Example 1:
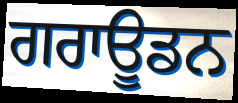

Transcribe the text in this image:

ਗਰਾਊਡਨ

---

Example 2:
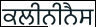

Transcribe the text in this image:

ਕਲੀਨੀਨੈਸ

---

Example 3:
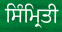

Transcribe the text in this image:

ਸਿੰਮ੍ਰਿਤੀ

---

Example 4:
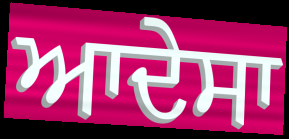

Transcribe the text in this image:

ਆਦੇਸਾ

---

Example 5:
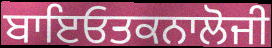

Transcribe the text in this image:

ਬਾਇਓਤਕਨਾਲੋਜੀ